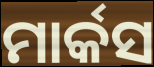
ମାର୍କସ